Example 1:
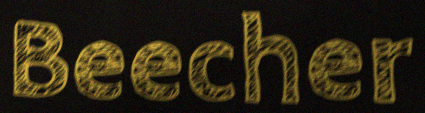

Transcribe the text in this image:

Beecher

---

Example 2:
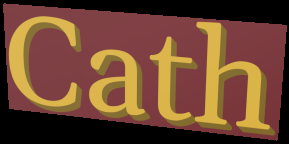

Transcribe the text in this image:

Cath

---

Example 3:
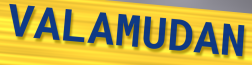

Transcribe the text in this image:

VALAMUDAN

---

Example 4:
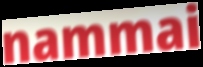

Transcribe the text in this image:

nammai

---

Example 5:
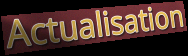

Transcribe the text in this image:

Actualisation